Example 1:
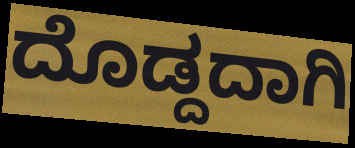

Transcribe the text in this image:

ದೊಡ್ದದಾಗಿ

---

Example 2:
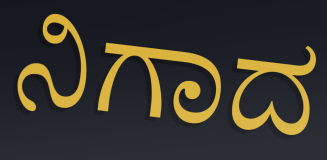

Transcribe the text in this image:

ನಿಗಾದ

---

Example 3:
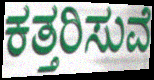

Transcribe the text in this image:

ಕತ್ತರಿಸುವೆ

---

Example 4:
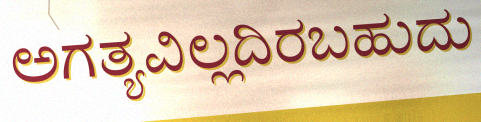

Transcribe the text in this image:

ಅಗತ್ಯವಿಲ್ಲದಿರಬಹುದು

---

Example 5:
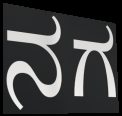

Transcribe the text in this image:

ನಗ